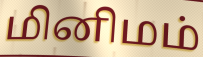
மினிமம்